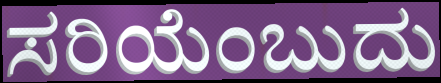
ಸರಿಯೆಂಬುದು